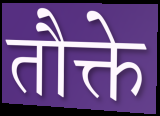
तौक्ते